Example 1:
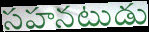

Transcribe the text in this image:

సహనటుడు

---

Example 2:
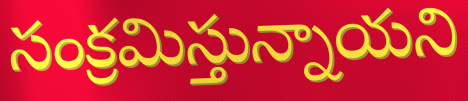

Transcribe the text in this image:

సంక్రమిస్తున్నాయని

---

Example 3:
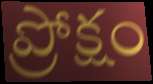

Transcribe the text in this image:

ప్రోక్షం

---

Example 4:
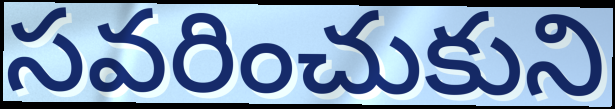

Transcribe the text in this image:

సవరించుకుని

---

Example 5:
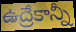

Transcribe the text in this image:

ఉద్రేకాన్నీ